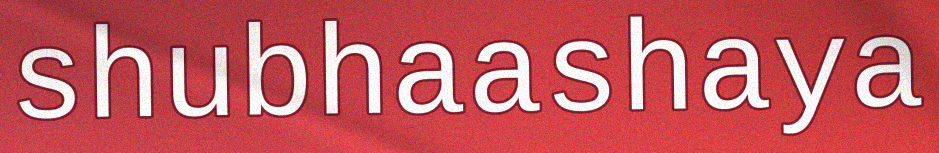
shubhaashaya